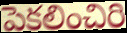
పెకలించిరి